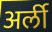
अर्ली